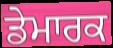
ਡੇਮਾਰਕ